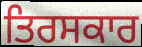
ਤਿਰਸਕਾਰ